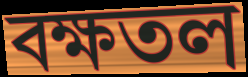
বক্ষতল